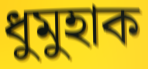
ধুমুহাক